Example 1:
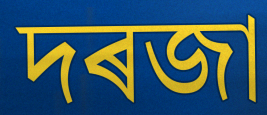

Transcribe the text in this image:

দৰজা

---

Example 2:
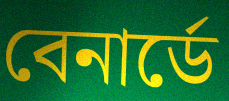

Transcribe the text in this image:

বেনাৰ্ডে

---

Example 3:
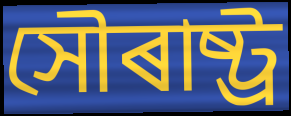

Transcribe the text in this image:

সৌৰাষ্ট্ৰ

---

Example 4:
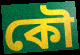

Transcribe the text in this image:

কৌ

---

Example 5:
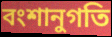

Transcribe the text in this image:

বংশানুগতি